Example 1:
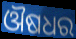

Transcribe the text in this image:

ଔଷଧର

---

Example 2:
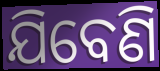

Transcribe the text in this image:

ଯିବେଣି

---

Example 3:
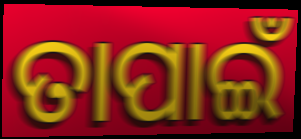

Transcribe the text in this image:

ତାପାଇଁ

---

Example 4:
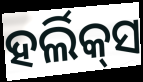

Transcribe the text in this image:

ହର୍ଲିକ୍‌ସ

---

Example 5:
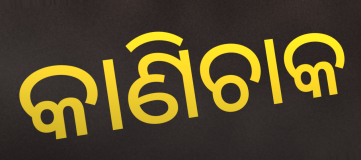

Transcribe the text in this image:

କାଣିଚାକ